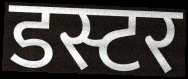
डस्टर